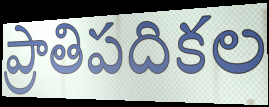
ప్రాతిపదికల